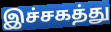
இச்சகத்து